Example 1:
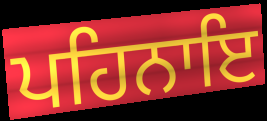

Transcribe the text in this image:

ਪਹਿਨਾਇ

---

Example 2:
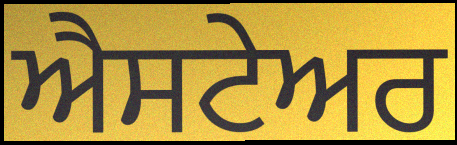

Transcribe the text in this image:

ਐਸਟੇਅਰ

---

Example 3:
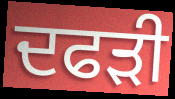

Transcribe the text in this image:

ਦਫੜੀ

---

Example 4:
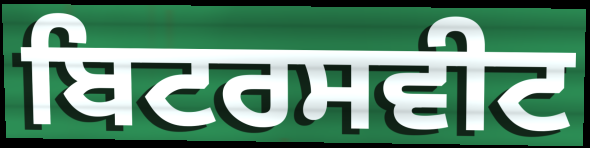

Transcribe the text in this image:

ਬਿਟਰਸਵੀਟ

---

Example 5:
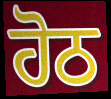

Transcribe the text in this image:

ਹੋਠ